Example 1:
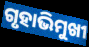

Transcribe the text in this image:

ଗୃହାଭିମୁଖୀ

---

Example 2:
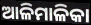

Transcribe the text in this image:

ଆଳିମାଳିକା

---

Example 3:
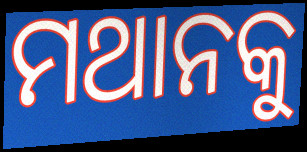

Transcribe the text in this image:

ମଥାନକୁ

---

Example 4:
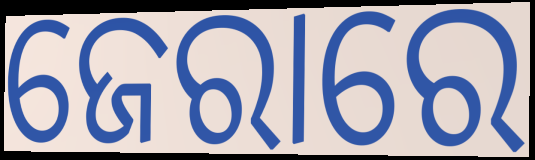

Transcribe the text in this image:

ଜେରାରେ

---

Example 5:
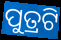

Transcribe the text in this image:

ପୁତ୍ରଟି